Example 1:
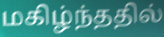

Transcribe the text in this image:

மகிழ்ந்ததில்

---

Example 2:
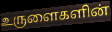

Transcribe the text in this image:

உருளைகளின்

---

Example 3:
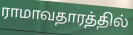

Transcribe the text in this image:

ராமாவதாரத்தில்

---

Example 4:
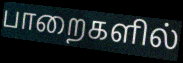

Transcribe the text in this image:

பாறைகளில்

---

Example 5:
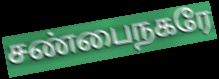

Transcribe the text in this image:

சண்பைநகரே